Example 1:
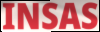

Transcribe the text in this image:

INSAS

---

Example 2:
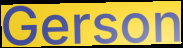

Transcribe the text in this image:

Gerson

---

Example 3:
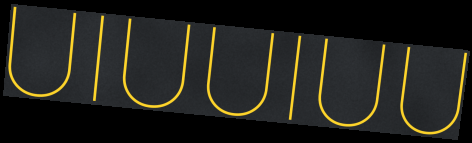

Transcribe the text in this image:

UIUUIUU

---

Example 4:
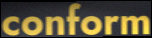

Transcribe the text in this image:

conform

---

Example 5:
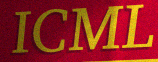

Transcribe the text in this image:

ICML